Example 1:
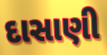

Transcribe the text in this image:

દાસાણી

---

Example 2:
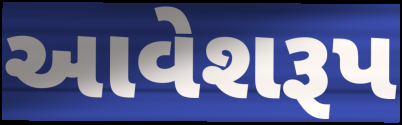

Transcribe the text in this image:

આવેશરૂપ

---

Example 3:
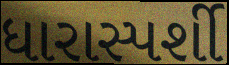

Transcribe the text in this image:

ધારાસ્પર્શી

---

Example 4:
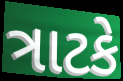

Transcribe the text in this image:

ત્રાટકે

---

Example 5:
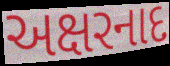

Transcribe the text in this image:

અક્ષરનાદ